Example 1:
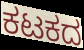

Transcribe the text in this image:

ಕಟಕದ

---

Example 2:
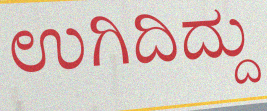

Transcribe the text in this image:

ಉಗಿದಿದ್ದು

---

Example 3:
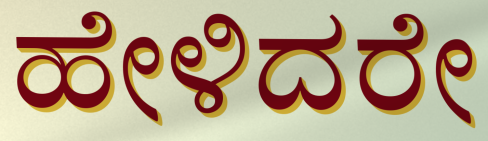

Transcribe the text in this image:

ಹೇಳಿದರೇ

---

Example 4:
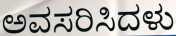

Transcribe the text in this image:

ಅವಸರಿಸಿದಳು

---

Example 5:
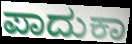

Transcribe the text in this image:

ಪಾದುಕಾ